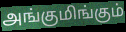
அங்குமிங்கும்